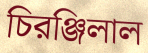
চিরঞ্জিলাল